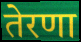
तेरणा